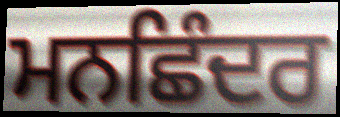
ਮਨਛਿੰਦਰ